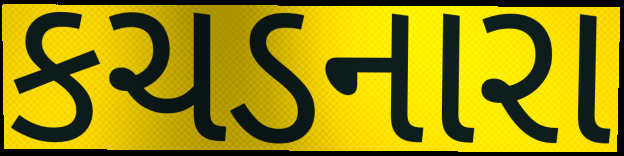
કચડનારા